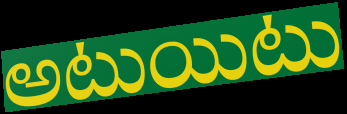
అటుయిటు